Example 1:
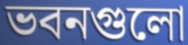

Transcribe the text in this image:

ভবনগুলো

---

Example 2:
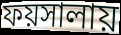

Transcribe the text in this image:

ফয়সালায়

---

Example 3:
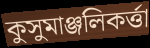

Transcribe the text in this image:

কুসুমাঞ্জলিকর্ত্তা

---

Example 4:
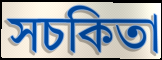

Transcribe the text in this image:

সচকিতা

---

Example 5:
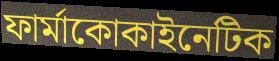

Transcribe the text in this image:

ফার্মাকোকাইনেটিক